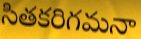
సితకరిగమనా